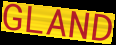
GLAND